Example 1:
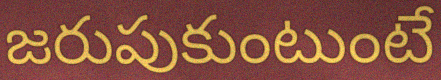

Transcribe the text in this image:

జరుపుకుంటుంటే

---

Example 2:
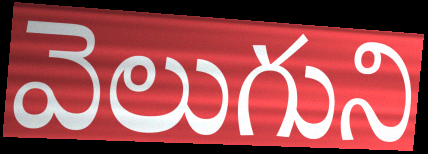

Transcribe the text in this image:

వెలుగుని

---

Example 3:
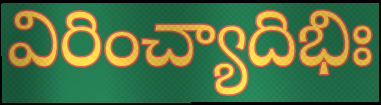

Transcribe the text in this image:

విరించ్యాదిభిః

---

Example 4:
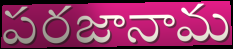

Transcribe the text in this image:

పరజానామ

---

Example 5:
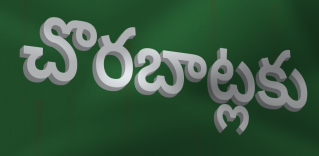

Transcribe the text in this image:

చొరబాట్లకు